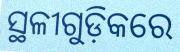
ସ୍ଥଳୀଗୁଡ଼ିକରେ